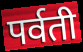
पर्वती